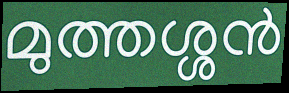
മുത്തശ്ശൻ